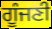
ਗੂੰਜਣੀ